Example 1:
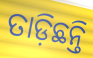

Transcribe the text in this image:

ତାଡ଼ିଛନ୍ତି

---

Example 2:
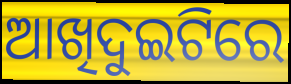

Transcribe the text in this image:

ଆଖିଦୁଇଟିରେ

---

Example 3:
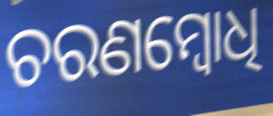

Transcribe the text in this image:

ଚରଣମ୍ବୋଧି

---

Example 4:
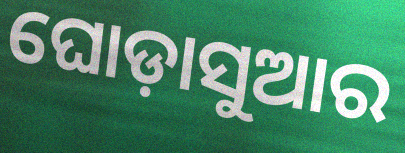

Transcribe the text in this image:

ଘୋଡ଼ାସୁଆର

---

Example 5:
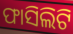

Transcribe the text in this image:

ଫାସିଲିଟି